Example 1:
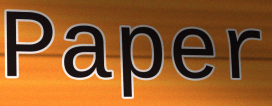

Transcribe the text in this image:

Paper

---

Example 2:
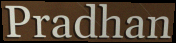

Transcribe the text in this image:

Pradhan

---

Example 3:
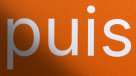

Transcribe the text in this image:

puis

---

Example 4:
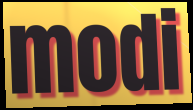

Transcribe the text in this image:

modi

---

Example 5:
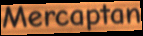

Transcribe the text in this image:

Mercaptan